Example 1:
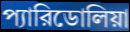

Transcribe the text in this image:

প্যারিডোলিয়া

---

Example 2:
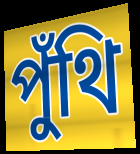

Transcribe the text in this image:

পুঁথি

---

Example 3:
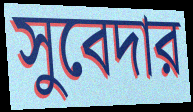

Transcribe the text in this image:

সুবেদার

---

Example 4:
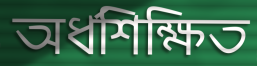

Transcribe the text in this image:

অর্ধশিক্ষিত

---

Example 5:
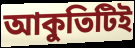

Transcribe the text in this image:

আকুতিটিই